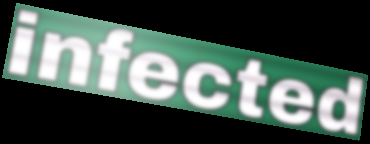
infected